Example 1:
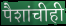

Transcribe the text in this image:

पैशांचीही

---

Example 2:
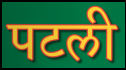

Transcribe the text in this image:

पटली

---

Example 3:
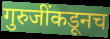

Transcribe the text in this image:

गुरुजींकडूनच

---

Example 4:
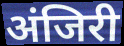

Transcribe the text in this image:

अंजिरी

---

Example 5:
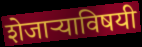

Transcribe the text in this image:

शेजाऱ्याविषयी